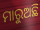
ମାରୁଅଛି